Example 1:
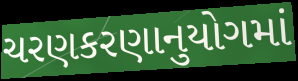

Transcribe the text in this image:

ચરણકરણાનુયોગમાં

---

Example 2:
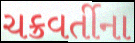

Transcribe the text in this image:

ચક્રવર્તીના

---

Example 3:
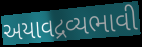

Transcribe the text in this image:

અયાવદ્રવ્યભાવી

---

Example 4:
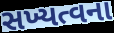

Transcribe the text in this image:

સખ્યત્વના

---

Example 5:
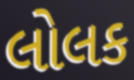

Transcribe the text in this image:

લોલક